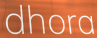
dhora